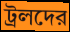
ট্রলদের